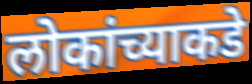
लोकांच्याकडे